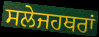
ਸਲੇਜਹਥਰਾਂ